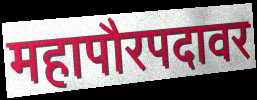
महापौरपदावर